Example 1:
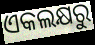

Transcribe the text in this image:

ଏକଲକ୍ଷରୁ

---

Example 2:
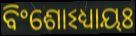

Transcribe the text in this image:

ବିଂଶୋଽଧ୍ୟାୟଃ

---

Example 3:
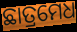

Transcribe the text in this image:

ଛାତ୍ରମେଧ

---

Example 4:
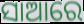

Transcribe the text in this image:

ସାଆରେ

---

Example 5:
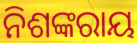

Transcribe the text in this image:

ନିଶଙ୍କରାୟ